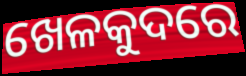
ଖେଳକୁଦରେ